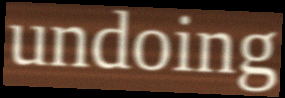
undoing